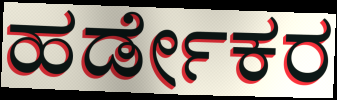
ಹರ್ಡೇಕರ